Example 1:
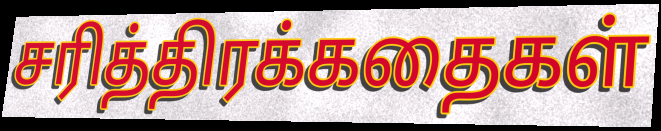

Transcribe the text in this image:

சரித்திரக்கதைகள்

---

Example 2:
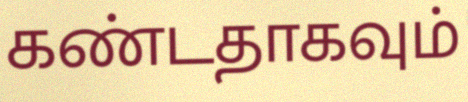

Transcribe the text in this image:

கண்டதாகவும்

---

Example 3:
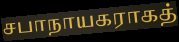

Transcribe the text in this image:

சபாநாயகராகத்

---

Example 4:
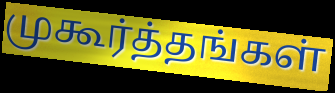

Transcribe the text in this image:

முகூர்த்தங்கள்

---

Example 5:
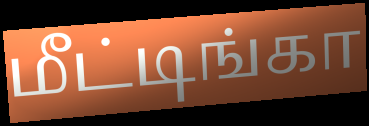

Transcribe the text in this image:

மீட்டிங்கா